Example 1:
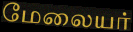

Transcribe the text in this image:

மேலையர்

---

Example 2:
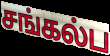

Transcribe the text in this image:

சங்கல்ப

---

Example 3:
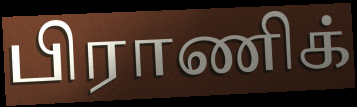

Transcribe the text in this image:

பிராணிக்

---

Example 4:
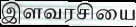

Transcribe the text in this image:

இளவரசியை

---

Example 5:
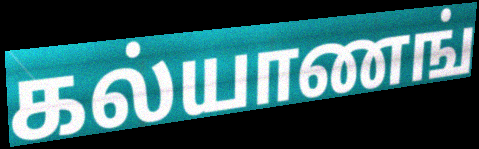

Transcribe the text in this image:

கல்யாணங்